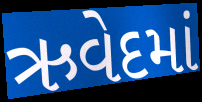
ઋવેદમાં